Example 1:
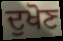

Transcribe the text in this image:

ਦੁਖੋਣ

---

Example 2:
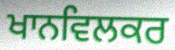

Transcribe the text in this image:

ਖਾਨਵਿਲਕਰ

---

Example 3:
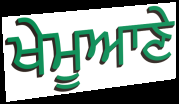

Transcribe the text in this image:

ਖੇਮੂਆਣੇ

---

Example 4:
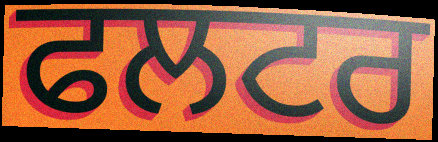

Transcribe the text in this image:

ਫਲਟਰ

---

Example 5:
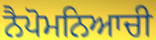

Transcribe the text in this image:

ਨੈਪੋਮਨਿਆਚੀ